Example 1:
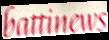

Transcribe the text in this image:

battinews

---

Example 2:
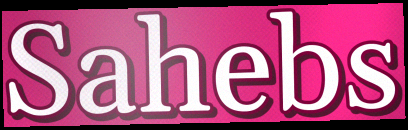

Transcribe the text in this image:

Sahebs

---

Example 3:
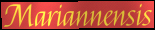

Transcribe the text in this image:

Mariannensis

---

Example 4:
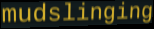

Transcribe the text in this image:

mudslinging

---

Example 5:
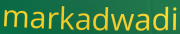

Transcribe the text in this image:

markadwadi